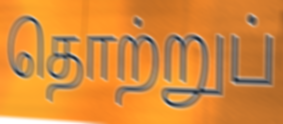
தொற்றுப்